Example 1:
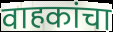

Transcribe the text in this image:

वाहकांचा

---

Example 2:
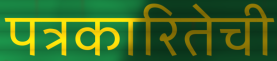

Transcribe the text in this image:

पत्रकारितेची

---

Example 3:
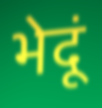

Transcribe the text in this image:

भेदूं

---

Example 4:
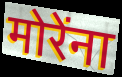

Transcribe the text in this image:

मोरेंना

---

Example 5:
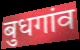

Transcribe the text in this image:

बुधगांव